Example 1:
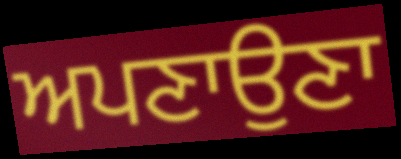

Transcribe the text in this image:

ਅਪਣਾਉਣਾ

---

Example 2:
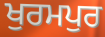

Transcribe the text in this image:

ਖੁਰਮਪੁਰ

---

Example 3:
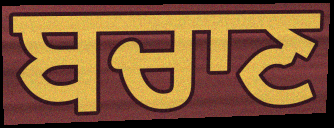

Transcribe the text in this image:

ਬਚਾਣ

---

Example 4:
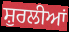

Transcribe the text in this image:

ਸ਼ੁਰਲੀਆਂ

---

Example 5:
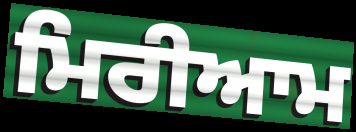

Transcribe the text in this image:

ਮਿਰੀਆਮ